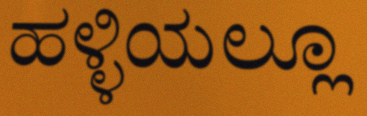
ಹಳ್ಳಿಯಲ್ಲೂ